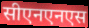
सीएनएनएस